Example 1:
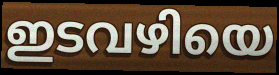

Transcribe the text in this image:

ഇടവഴിയെ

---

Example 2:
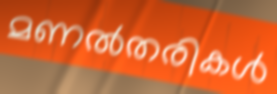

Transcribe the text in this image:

മണൽതരികൾ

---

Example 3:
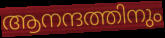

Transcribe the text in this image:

ആനന്ദത്തിനും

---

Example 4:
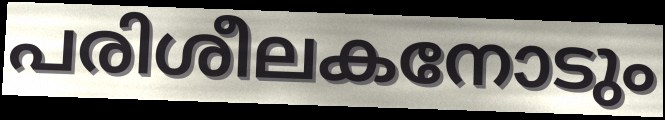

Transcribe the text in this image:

പരിശീലകനോടും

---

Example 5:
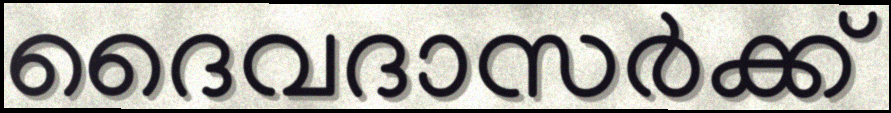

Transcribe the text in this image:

ദൈവദാസർക്ക്